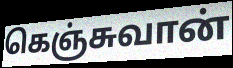
கெஞ்சுவான்